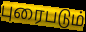
புரைபடும்